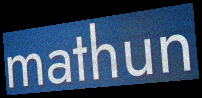
mathun